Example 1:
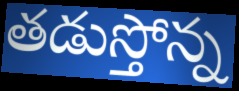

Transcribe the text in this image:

తడుస్తోన్న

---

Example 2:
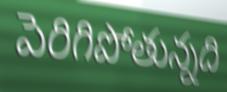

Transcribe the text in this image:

పెరిగిపోతున్నది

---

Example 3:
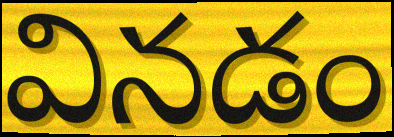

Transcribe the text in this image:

వినడం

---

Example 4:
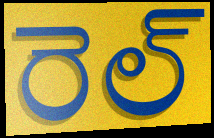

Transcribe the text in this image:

రెల్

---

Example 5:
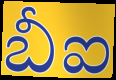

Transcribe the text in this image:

బీఐ